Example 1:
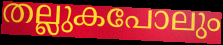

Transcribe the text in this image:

തല്ലുകപോലും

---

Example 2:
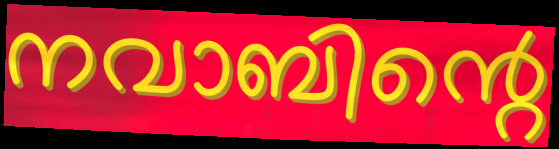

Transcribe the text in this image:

നവാബിന്റെ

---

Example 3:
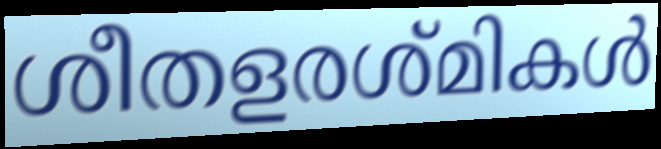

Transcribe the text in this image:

ശീതളരശ്മികൾ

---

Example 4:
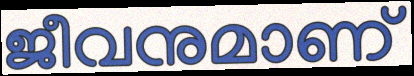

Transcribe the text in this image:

ജീവനുമാണ്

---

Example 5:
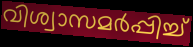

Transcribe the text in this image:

വിശ്വാസമർപ്പിച്ച്